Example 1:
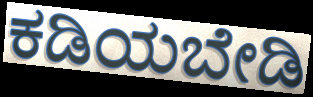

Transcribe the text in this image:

ಕಡಿಯಬೇಡಿ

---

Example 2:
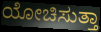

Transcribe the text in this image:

ಯೋಚಿಸುತ್ತಾ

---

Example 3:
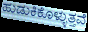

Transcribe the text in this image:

ಹುಡುಕಿಕೊಳ್ಳುತ್ತವೆ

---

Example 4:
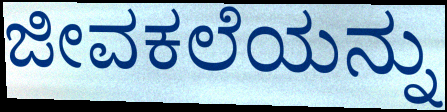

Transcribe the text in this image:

ಜೀವಕಲೆಯನ್ನು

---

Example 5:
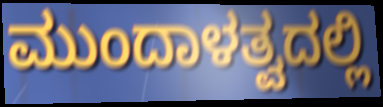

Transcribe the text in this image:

ಮುಂದಾಳತ್ವದಲ್ಲಿ